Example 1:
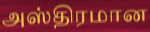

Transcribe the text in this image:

அஸ்திரமான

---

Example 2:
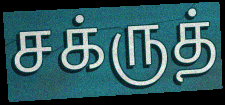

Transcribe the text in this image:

சக்ருத்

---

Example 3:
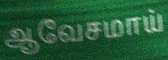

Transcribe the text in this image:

ஆவேசமாய்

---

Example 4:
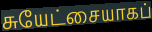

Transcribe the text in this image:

சுயேட்சையாகப்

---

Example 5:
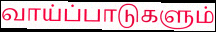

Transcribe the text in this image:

வாய்ப்பாடுகளும்